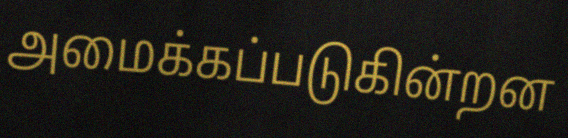
அமைக்கப்படுகின்றன